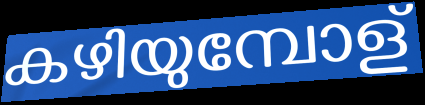
കഴിയുമ്പോള്